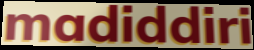
madiddiri